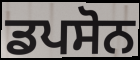
ਡਪਸੋਨ